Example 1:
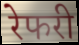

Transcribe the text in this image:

रेफरी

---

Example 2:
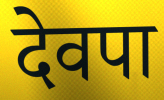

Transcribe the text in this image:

देवपा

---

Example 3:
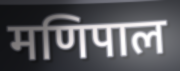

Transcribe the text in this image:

मणिपाल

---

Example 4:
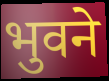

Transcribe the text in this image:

भुवने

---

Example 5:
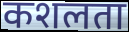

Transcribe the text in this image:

कशलता